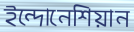
ইন্দোনেশিয়ান